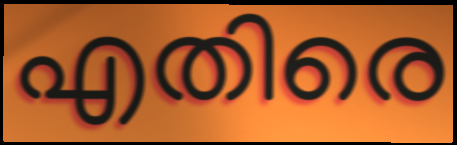
എതിരെ